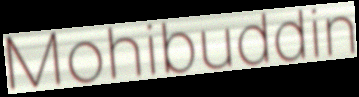
Mohibuddin